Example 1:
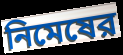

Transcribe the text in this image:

নিমেষের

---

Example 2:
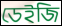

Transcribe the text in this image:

ডেইজি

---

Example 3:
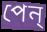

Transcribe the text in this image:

পেন্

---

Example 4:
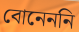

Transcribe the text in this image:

বোনেননি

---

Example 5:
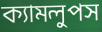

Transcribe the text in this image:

ক্যামলুপস